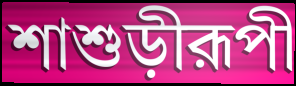
শাশুড়ীরূপী